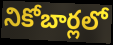
నికోబార్లలో